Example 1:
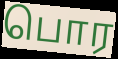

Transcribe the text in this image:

பொர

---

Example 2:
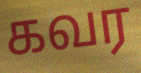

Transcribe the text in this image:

கவர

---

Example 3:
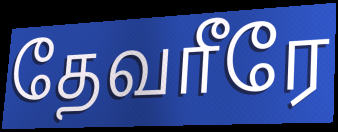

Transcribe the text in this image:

தேவரீரே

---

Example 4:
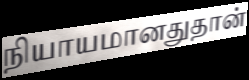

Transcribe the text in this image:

நியாயமானதுதான்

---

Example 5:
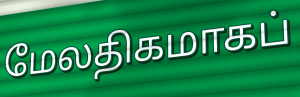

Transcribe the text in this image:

மேலதிகமாகப்